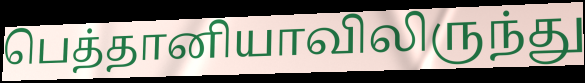
பெத்தானியாவிலிருந்து